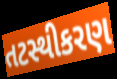
તટસ્થીકરણ